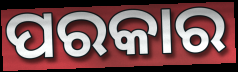
ପରକାର